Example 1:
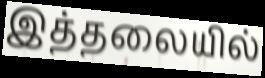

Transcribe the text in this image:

இத்தலையில்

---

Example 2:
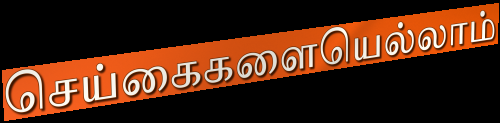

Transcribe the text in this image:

செய்கைகளையெல்லாம்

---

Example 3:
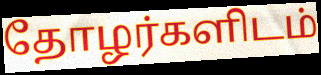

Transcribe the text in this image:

தோழர்களிடம்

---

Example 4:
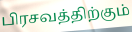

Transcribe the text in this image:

பிரசவத்திற்கும்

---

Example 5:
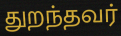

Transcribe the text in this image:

துறந்தவர்